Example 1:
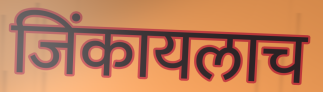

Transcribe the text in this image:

जिंकायलाच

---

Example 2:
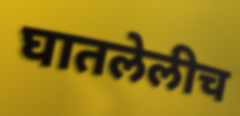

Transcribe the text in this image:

घातलेलीच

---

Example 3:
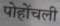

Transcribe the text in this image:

पोहोंचली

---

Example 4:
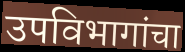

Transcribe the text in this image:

उपविभागांचा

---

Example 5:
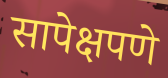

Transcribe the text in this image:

सापेक्षपणे